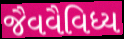
જૈવવૈવિધ્ય